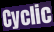
Cyclic